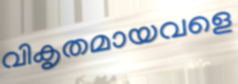
വികൃതമായവളെ